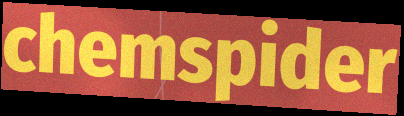
chemspider